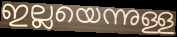
ഇല്ലയെന്നുള്ള